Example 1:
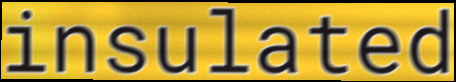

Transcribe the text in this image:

insulated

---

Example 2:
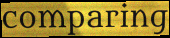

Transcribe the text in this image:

comparing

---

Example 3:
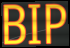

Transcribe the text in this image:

BIP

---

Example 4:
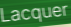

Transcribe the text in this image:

Lacquer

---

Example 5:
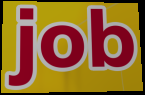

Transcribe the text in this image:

job